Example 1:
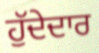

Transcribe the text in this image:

ਹੁੱਦੇਦਾਰ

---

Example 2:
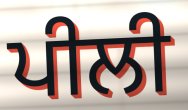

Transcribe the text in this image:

ਪੀਲੀ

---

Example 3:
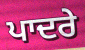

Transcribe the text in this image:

ਪਾਦਰੇ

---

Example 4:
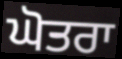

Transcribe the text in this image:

ਘੋਤਰਾ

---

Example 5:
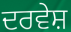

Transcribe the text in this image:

ਦਰਵੇਸ਼